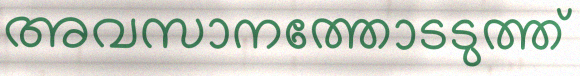
അവസാനത്തോടടുത്ത്